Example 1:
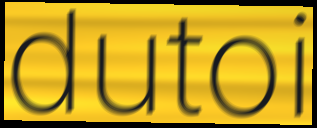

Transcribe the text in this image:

dutoi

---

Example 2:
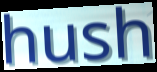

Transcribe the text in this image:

hush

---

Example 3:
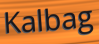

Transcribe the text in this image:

Kalbag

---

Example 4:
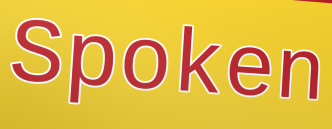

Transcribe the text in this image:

Spoken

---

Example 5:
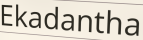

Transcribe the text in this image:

Ekadantha